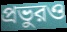
প্রভুরও